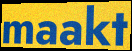
maakt